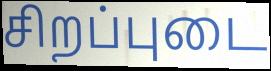
சிறப்புடை